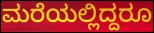
ಮರೆಯಲ್ಲಿದ್ದರೂ